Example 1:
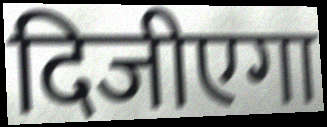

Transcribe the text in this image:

दिजीएगा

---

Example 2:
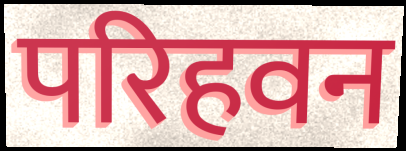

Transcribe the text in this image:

परिहवन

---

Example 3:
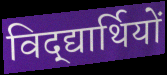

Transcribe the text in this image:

विद्द्यार्थियों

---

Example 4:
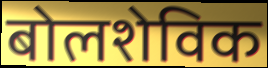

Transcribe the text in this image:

बोलशेविक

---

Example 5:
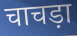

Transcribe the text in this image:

चाचड़ा